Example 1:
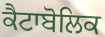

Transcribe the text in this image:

ਕੈਟਾਬੋਲਿਕ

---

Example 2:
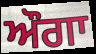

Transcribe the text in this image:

ਔਗਾ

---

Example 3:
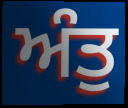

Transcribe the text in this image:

ਅੰਤੁ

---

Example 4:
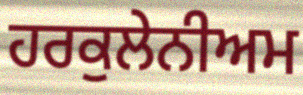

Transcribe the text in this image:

ਹਰਕੁਲੇਨੀਅਮ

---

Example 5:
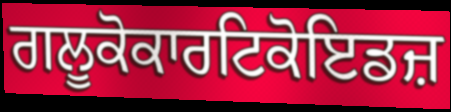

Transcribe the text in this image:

ਗਲੂਕੋਕਾਰਟਿਕੋਇਡਜ਼